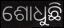
ଶୋଧୁଛି